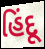
હિંદૂ